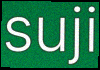
suji